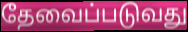
தேவைப்படுவது